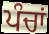
ਪੰਚਾਂ